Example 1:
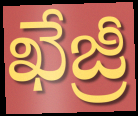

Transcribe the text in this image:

ఖేజ్రీ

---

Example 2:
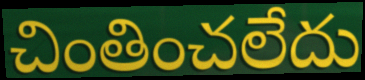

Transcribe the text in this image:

చింతించలేదు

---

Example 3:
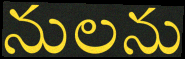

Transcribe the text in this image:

నులను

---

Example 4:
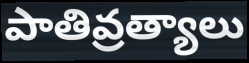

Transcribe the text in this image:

పాతివ్రత్యాలు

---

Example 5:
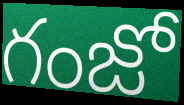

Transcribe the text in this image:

గంజో